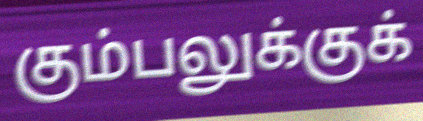
கும்பலுக்குக்